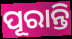
ପୂରାନ୍ତି